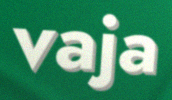
vaja